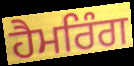
ਹੈਮਰਿੰਗ